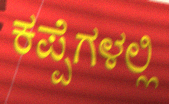
ಕಪ್ಪೆಗಳಲ್ಲಿ